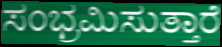
ಸಂಭ್ರಮಿಸುತ್ತಾರೆ